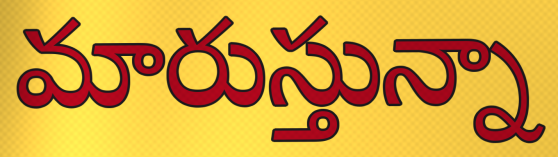
మారుస్తున్నా